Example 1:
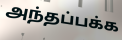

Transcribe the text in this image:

அந்தப்பக்க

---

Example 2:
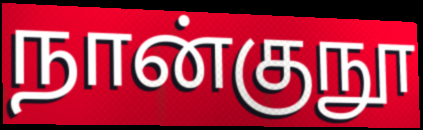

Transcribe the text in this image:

நான்குநூ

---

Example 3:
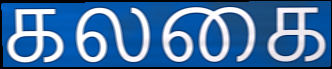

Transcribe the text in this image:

கலகை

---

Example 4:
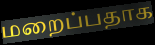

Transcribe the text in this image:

மறைப்பதாக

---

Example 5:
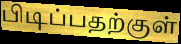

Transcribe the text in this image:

பிடிப்பதற்குள்